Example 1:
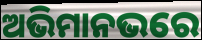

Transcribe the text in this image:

ଅଭିମାନଭରେ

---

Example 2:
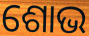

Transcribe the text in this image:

ଶୋଭ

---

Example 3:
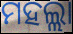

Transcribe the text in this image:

ମହଲ୍ଲା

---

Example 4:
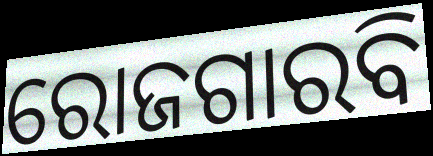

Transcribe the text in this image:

ରୋଜଗାରବି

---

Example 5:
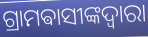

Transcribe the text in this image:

ଗ୍ରାମଵାସୀଙ୍କଦ୍ୱାରା